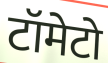
टॉमेटो